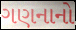
ગણનાનો